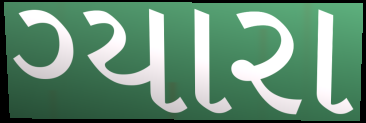
ગ્યારા